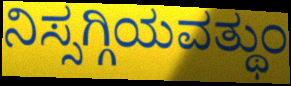
ನಿಸ್ಸಗ್ಗಿಯವತ್ಥುಂ